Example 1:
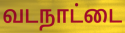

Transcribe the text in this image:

வடநாட்டை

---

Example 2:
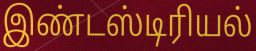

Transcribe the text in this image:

இண்டஸ்டிரியல்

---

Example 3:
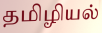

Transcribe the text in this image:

தமிழியல்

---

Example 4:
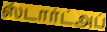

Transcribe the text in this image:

ஸ்டார்ட்அப்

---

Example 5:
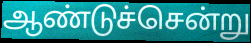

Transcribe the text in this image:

ஆண்டுச்சென்று